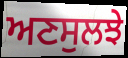
ਅਣਸੁਲਝੇ